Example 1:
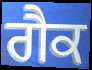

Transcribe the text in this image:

ਗੈਕ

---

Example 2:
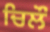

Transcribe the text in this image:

ਚਿਲੌ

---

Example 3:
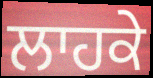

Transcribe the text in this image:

ਲਾਹਕੇ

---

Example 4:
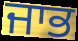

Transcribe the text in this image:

ਜਾਭ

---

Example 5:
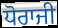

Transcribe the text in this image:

ਧੋਰਾਜੀ